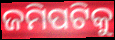
ଜମିପଟିକୁ